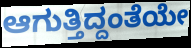
ಆಗುತ್ತಿದ್ದಂತೆಯೇ